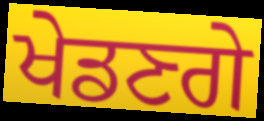
ਖੇਡਣਗੇ